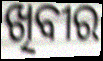
ଖିବୀର